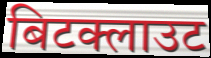
बिटक्लाउट